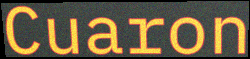
Cuaron